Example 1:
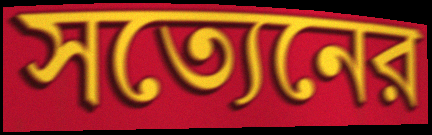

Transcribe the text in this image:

সত্যেনের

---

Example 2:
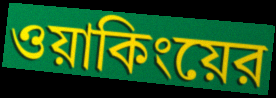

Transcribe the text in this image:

ওয়াকিংয়ের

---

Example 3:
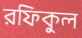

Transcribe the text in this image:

রফিকুল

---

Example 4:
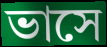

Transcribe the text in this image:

ভাসে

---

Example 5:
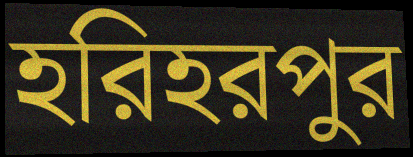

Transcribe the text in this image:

হরিহরপুর